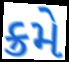
ક્રમે